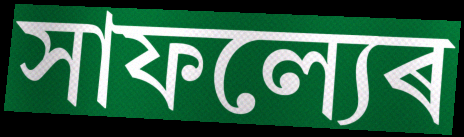
সাফল্যেৰ